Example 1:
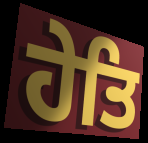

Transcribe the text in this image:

ਹੇਤਿ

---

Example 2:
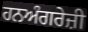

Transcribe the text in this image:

ਹਨਅੰਗਰੇਜ਼ੀ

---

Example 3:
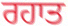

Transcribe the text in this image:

ਰਹਾਤ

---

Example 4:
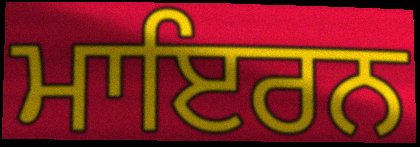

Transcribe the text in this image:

ਮਾਇਰਨ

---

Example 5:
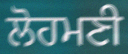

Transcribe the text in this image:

ਲੋਹਮਣੀ